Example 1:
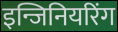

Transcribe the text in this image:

इन्जिनियरिंग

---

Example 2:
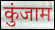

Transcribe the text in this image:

कुंजाम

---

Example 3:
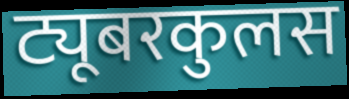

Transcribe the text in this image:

ट्यूबरकुलस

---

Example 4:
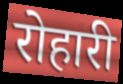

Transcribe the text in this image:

रोहारी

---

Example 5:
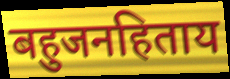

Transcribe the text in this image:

बहुजनहिताय